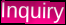
Inquiry